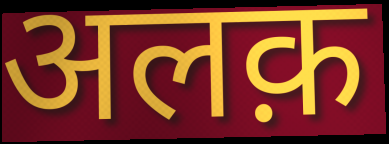
अलक़